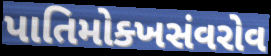
પાતિમોક્ખસંવરોવ